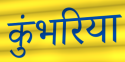
कुंभरिया